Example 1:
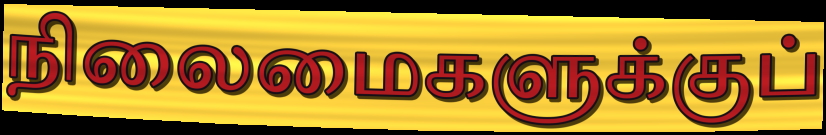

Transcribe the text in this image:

நிலைமைகளுக்குப்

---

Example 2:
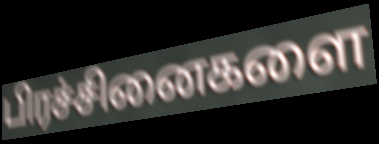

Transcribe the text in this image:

பிரச்சினைகளை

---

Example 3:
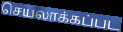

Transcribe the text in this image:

செயலாக்கப்பட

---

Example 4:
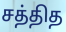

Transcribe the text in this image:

சத்தித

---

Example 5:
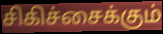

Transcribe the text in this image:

சிகிச்சைக்கும்